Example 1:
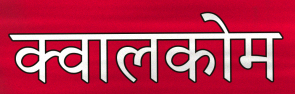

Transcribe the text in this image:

क्वालकोम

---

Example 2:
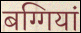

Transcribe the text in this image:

बग्गियां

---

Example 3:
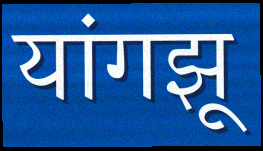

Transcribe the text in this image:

यांगझू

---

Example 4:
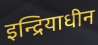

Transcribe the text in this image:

इन्द्रियाधीन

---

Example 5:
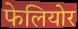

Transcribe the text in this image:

फेलियोर